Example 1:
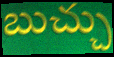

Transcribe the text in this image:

బుచ్చు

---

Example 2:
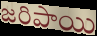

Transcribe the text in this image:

జరిపాయి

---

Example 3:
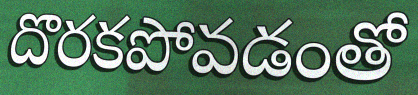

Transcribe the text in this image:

దొరకపోవడంతో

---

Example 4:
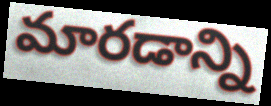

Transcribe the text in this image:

మారడాన్ని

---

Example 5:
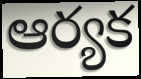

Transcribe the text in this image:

ఆర్యక